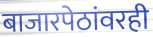
बाजारपेठांवरही